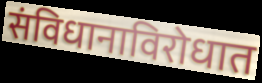
संविधानाविरोधात